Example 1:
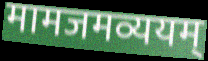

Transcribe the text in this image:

मामजमव्ययम्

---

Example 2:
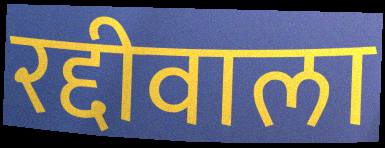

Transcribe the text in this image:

रद्दीवाला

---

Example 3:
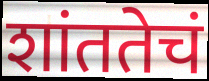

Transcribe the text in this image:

शांततेचं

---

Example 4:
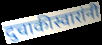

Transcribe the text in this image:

दुचाकीस्वारांनी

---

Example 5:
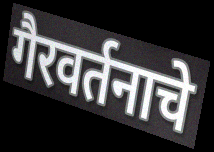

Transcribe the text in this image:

गैरवर्तनाचे